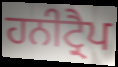
ਹਨੀਟ੍ਰੈਪ